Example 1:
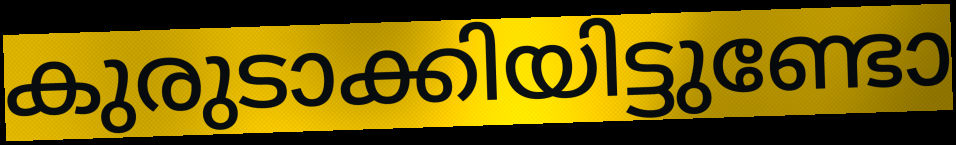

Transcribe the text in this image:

കുരുടാക്കിയിട്ടുണ്ടോ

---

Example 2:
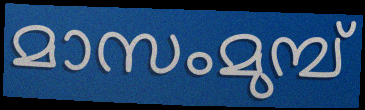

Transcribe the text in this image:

മാസംമുമ്പ്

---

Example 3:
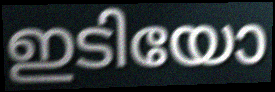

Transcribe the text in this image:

ഇടിയോ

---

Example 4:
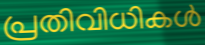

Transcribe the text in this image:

പ്രതിവിധികൾ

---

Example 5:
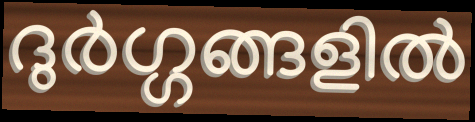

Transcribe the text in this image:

ദുർഗ്ഗങ്ങളിൽ